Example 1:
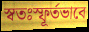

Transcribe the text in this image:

স্বতঃস্ফূৰ্তভাবে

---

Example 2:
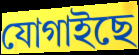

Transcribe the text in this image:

যোগাইছে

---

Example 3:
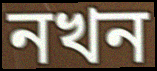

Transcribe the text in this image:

নখন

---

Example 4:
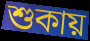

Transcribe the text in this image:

শুকায়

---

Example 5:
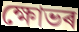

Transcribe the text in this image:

ক্ষোভৰ